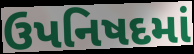
ઉપનિષદમાં